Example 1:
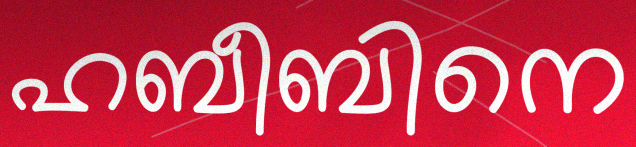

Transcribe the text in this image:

ഹബീബിനെ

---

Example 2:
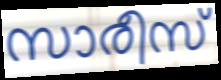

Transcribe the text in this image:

സാരീസ്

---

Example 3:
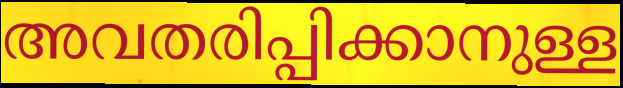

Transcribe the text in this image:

അവതരിപ്പിക്കാനുള്ള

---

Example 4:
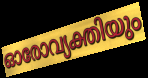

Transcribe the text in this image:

ഓരോവ്യക്തിയും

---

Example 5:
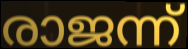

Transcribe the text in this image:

രാജന്ന്